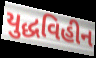
યુદ્ધવિહીન